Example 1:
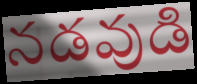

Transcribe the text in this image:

నడవుడి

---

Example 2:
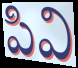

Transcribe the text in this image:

పివి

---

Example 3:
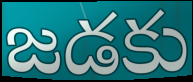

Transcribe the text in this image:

జడకు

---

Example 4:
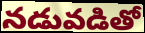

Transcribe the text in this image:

నడువడితో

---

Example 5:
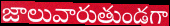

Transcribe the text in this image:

జాలువారుతుండగా